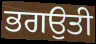
ਭਗਉਤੀ